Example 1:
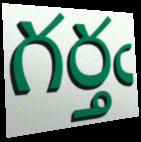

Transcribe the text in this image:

గర్తఁ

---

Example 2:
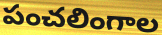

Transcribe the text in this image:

పంచలింగాల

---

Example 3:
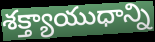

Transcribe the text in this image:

శక్త్యాయుధాన్ని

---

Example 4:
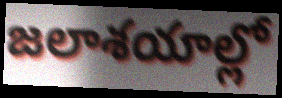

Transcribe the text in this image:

జలాశయాల్లో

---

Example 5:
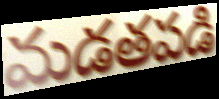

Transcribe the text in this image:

మడతపడి